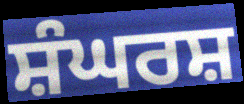
ਸ਼ੰਘਰਸ਼